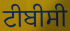
ਟੀਬੀਸੀ